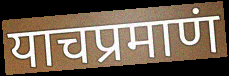
याचप्रमाणं